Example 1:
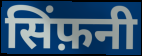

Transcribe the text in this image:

सिंफ़नी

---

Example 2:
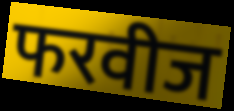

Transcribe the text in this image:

फरवीज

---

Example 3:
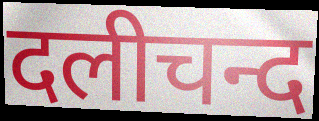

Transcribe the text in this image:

दलीचन्द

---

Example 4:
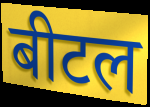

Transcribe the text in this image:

बीटल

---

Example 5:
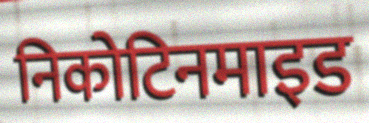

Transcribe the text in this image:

निकोटिनमाइड